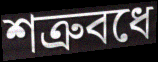
শত্রুবধে